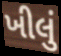
ખીલું